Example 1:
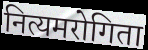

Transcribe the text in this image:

नित्यमरोगिता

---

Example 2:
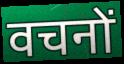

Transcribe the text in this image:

वचनों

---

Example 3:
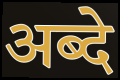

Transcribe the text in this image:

अब्दे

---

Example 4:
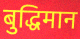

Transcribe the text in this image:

बुद्धिमान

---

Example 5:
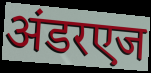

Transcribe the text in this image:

अंडरएज